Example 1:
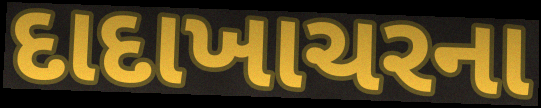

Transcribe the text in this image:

દાદાખાચરના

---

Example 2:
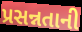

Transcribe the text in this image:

પ્રસન્નતાની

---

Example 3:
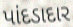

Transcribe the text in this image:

પાંદડાદાર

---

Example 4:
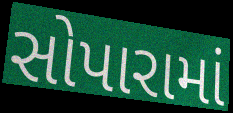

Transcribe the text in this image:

સોપારામાં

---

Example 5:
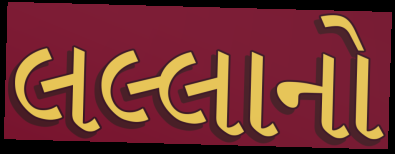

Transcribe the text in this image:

લલ્લાનો